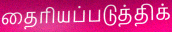
தைரியப்படுத்திக்